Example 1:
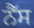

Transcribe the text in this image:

ਨੈੱਸ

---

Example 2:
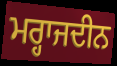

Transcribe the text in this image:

ਮਰ੍ਹਾਜਦੀਨ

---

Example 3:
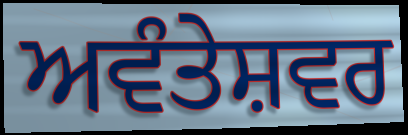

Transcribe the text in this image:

ਅਵੰਤੇਸ਼ਵਰ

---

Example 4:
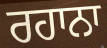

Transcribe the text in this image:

ਰਹਾਨਾ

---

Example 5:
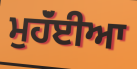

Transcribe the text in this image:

ਮੁਹੱਂਈਆ